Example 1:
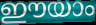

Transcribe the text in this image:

ഈയാം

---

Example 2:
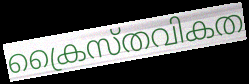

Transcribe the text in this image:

ക്രൈസ്തവികത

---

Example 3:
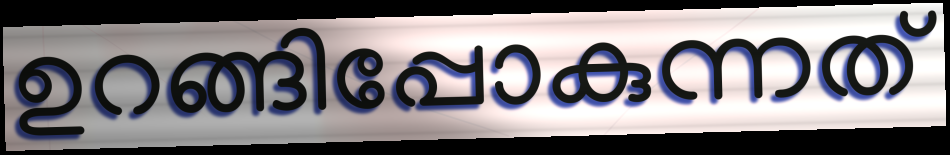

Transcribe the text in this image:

ഉറങ്ങിപ്പോകുന്നത്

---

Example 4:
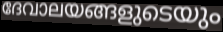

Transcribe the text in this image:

ദേവാലയങ്ങളുടെയും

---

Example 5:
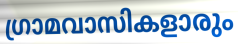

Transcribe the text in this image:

ഗ്രാമവാസികളാരും